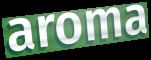
aroma